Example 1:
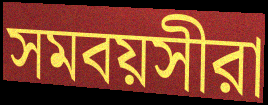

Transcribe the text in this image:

সমবয়সীরা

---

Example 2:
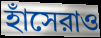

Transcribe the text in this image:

হাঁসেরাও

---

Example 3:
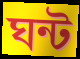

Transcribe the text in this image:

ঘন্ট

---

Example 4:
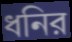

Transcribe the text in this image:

ধনির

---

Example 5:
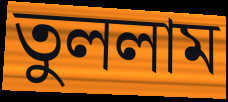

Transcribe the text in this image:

তুললাম